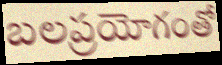
బలప్రయోగంతో